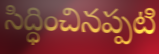
సిద్ధించినప్పటి